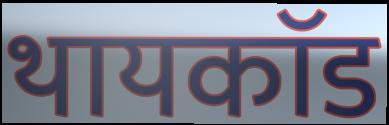
थायकॉड